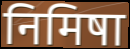
निमिषा